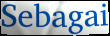
Sebagai